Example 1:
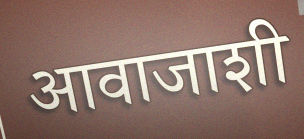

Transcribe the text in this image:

आवाजाशी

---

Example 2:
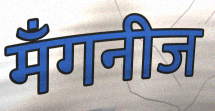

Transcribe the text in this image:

मँगनीज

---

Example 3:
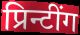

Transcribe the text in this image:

प्रिन्टींग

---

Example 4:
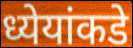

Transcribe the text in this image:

ध्येयांकडे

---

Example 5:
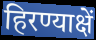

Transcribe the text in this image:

हिरण्याक्षें